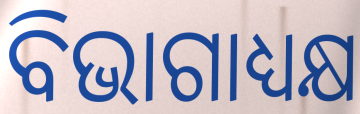
ବିଭାଗାଧ୍ୟକ୍ଷ